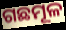
ଗଛମୂଳ